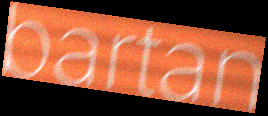
bartan